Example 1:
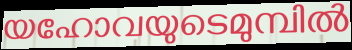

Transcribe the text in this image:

യഹോവയുടെമുമ്പിൽ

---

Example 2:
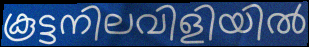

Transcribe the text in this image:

കൂട്ടനിലവിളിയിൽ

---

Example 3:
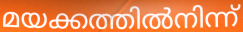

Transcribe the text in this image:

മയക്കത്തിൽനിന്ന്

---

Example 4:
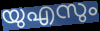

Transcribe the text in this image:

യുഎസും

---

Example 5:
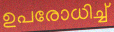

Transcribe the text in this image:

ഉപരോധിച്ച്